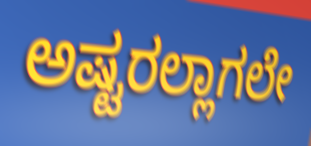
ಅಷ್ಟರಲ್ಲಾಗಲೇ